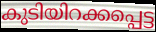
കുടിയിറക്കപ്പെട്ട